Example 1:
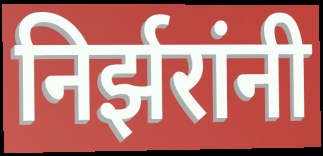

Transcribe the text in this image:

निर्झरांनी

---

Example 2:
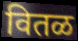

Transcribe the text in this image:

वितळ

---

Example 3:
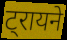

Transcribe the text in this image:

ट्रायने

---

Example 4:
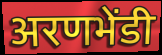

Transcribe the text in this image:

अरणभेंडी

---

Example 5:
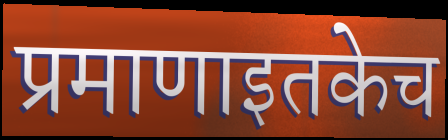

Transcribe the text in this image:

प्रमाणाइतकेच